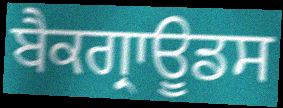
ਬੈਕਗ੍ਰਾਊਡਸ